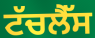
ਟੱਚਲੈੱਸ